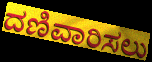
ದಣಿವಾರಿಸಲು